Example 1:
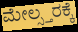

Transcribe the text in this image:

ಮೇಲ್ಸ್ತರಕ್ಕೆ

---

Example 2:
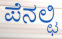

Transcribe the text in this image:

ಪೆನಲ್ಟಿ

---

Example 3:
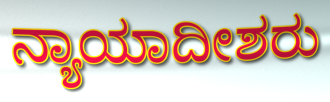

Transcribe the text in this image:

ನ್ಯಾಯಾದೀಶರು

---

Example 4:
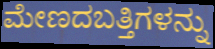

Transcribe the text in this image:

ಮೇಣದಬತ್ತಿಗಳನ್ನು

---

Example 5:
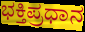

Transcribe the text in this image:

ಭಕ್ತಿಪ್ರಧಾನ